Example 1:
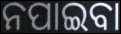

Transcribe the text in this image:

ନପାଇବା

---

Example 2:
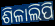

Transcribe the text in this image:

ଶିଳାଲିପି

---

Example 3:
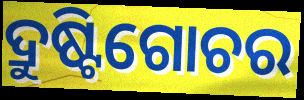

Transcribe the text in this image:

ଦ୍ରୁଷ୍ଟିଗୋଚର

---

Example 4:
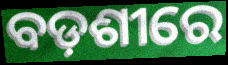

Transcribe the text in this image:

ବଡ଼ଶୀରେ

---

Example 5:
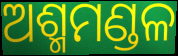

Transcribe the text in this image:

ଅଶ୍ମମଣ୍ଡଳ